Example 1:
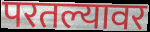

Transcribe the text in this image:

परतल्यावर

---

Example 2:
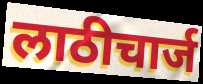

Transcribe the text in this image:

लाठीचार्ज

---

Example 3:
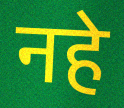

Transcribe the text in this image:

नहे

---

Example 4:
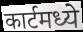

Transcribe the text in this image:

कार्टमध्ये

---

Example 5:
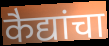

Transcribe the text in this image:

कैद्यांचा